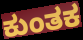
ಕುಂತಕ